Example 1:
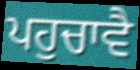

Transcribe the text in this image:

ਪਹੁਚਾਵੈ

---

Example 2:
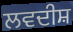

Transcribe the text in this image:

ਲਵਦੀਸ਼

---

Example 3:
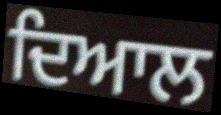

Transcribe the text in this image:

ਦਿਆਲ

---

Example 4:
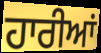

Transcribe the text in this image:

ਹਾਰੀਆਂ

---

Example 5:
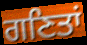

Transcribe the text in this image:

ਗਣਿਤਾਂ